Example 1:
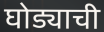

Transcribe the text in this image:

घोड्याची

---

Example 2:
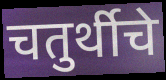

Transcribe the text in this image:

चतुर्थीचे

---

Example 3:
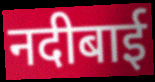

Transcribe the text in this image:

नदीबाई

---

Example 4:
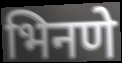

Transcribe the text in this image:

भिनणे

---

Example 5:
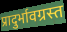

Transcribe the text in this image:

प्रादुर्भावग्रस्त